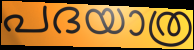
പദയാത്ര